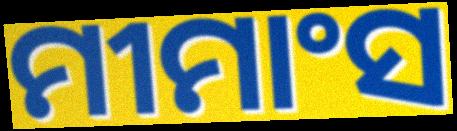
ମୀମାଂସ